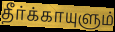
தீர்க்காயுளும்